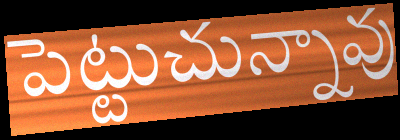
పెట్టుచున్నావు